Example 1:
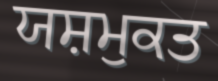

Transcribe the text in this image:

ਯਸ਼ਮੁਕਤ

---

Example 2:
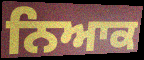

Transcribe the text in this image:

ਨਿਆਕ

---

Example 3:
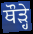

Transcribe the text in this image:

ਥੌੜ੍ਹੇ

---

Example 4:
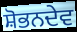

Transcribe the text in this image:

ਸ਼ੋਭਨਦੇਵ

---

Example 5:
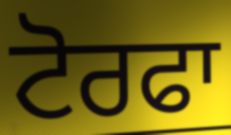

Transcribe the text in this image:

ਟੋਰਫਾ